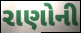
રાણોની